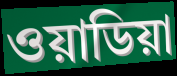
ওয়াডিয়া